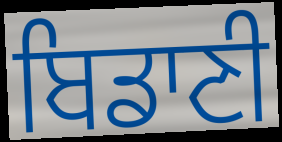
ਬਿਡਾਣੀ